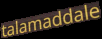
talamaddale